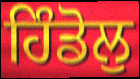
ਹਿੰਡੋਲੁ